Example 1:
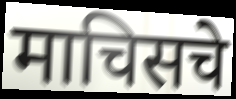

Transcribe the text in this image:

माचिसचे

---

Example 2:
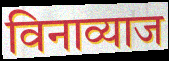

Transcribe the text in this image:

विनाव्याज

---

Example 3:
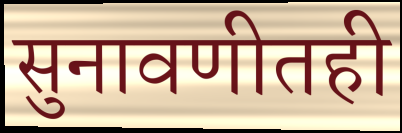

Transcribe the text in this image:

सुनावणीतही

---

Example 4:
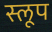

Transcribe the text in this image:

स्लूप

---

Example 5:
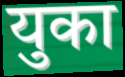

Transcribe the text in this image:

युका